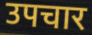
उपचार